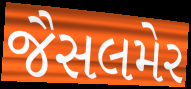
જૈસલમેર